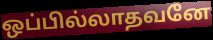
ஒப்பில்லாதவனே